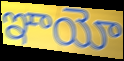
ఞాయో